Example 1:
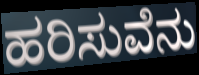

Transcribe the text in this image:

ಹರಿಸುವೆನು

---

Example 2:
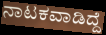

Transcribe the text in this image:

ನಾಟಕವಾಡಿದ್ದೆ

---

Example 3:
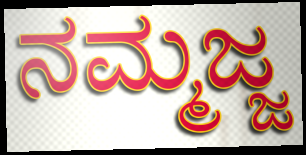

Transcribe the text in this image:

ನಮ್ಮಜ್ಜ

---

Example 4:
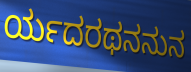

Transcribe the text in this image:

ರ್ಯದರಥನನುನ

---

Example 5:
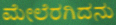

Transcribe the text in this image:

ಮೇಲೆರಗಿದನು